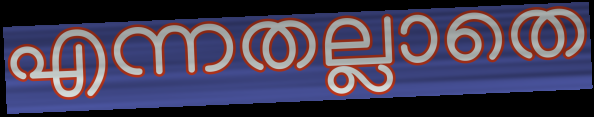
എന്നതല്ലാതെ